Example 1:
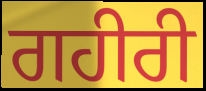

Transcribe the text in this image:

ਗਹੀਰੀ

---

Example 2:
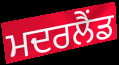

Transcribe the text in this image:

ਮਦਰਲੈਂਡ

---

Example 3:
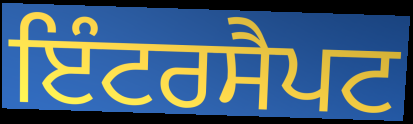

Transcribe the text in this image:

ਇੰਟਰਸੈਪਟ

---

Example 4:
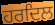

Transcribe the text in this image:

ਹਰਦਿਲ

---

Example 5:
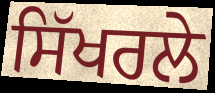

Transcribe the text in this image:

ਸਿੱਖਰਲੇ